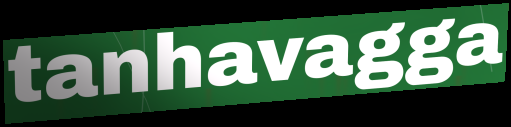
tanhavagga